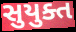
સુયુક્ત